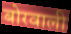
बोरवाली